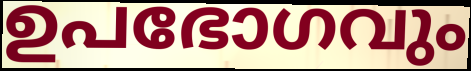
ഉപഭോഗവും